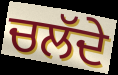
ਚਲੱਦੇ